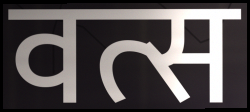
वत्स